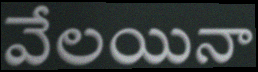
వేలయినా